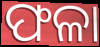
ଫଳା